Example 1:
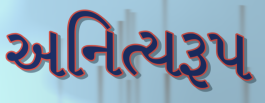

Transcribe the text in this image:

અનિત્યરૂપ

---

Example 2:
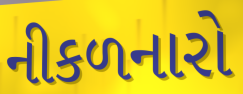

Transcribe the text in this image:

નીકળનારો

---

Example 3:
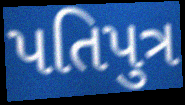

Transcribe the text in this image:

પતિપુત્ર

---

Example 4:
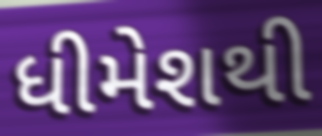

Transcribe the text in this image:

ધીમેશથી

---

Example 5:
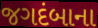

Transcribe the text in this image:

જગદંબાના